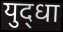
युद्धा